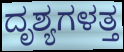
ದೃಶ್ಯಗಳತ್ತ